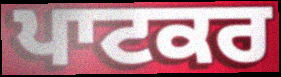
ਪਾਟਕਰ